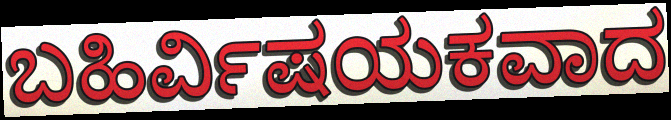
ಬಹಿರ್ವಿಷಯಕವಾದ